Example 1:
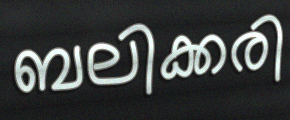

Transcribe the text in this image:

ബലിക്കരി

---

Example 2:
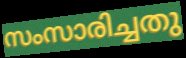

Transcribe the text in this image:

സംസാരിച്ചതു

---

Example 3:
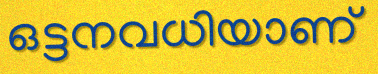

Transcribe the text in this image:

ഒട്ടനവധിയാണ്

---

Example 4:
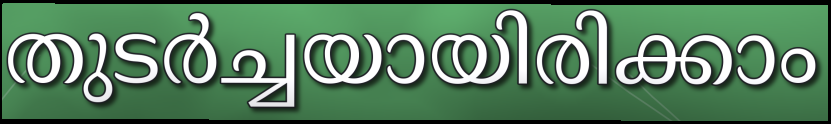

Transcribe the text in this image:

തുടർച്ചയായിരിക്കാം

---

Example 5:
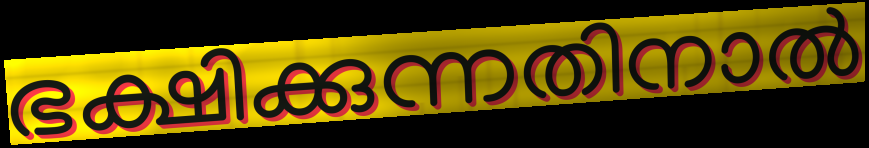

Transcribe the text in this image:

ഭക്ഷിക്കുന്നതിനാൽ